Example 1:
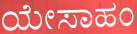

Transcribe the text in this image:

ಯೇಸಾಹಂ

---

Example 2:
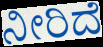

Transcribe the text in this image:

ನೀರಿದೆ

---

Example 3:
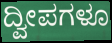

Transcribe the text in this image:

ದ್ವೀಪಗಳೂ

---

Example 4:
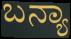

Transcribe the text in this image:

ಬನ್ಯಾ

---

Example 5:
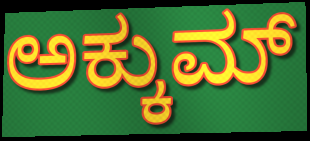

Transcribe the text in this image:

ಅಕ್ಕುಮ್